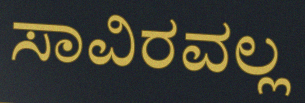
ಸಾವಿರವಲ್ಲ